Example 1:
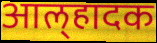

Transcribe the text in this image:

आल्हादक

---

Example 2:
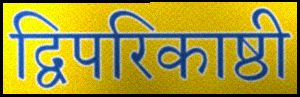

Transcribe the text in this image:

द्विपरिकाष्ठी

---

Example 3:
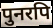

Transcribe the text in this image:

पुनरपि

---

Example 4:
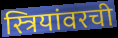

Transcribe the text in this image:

स्त्रियांवरची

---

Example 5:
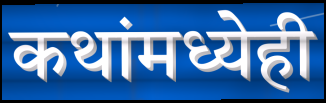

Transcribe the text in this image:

कथांमध्येही